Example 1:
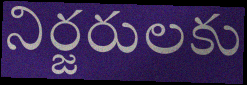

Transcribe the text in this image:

నిర్జరులకు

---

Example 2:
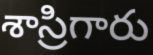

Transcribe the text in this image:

శాస్రిగారు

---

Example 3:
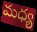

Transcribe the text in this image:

మధ్య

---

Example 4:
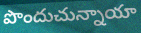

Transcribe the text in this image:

పొందుచున్నాయా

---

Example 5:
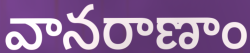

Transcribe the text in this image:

వానరాణాం